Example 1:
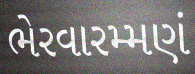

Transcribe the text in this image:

ભેરવારમ્મણં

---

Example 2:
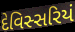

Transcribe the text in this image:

દેવિસ્સરિયં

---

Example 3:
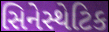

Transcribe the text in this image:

સિનેસ્થેટિક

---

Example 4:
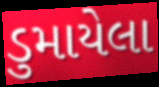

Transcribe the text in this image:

ડુમાયેલા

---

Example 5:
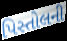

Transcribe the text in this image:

પિસ્તોલની